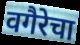
वगैरेचा